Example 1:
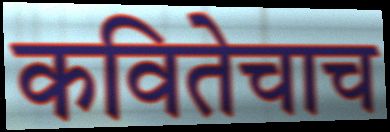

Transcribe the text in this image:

कवितेचाच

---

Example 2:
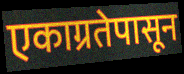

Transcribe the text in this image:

एकाग्रतेपासून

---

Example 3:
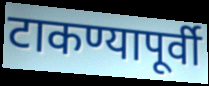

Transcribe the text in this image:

टाकण्यापूर्वी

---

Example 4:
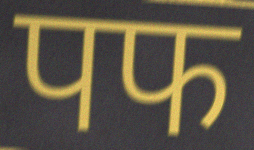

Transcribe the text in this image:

पफ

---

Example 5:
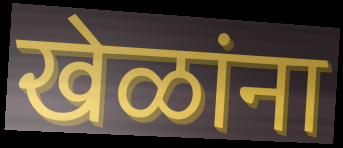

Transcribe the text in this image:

खेळांना